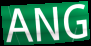
ANG